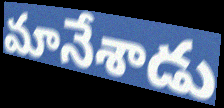
మానేశాడు